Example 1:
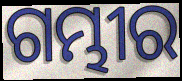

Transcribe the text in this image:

ଗମ୍ଭୀର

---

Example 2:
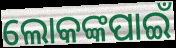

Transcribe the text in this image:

ଲୋକଙ୍କପାଇଁ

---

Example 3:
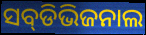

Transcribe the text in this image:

ସବ୍‌ଡିଭିଜନାଲ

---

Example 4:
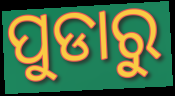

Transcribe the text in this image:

ପୁଡାରୁ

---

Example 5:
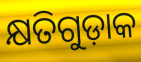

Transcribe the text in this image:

କ୍ଷତିଗୁଡ଼ାକ